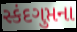
સ્કંદગુપ્તના